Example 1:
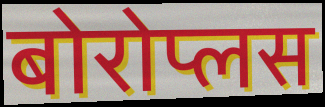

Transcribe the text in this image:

बोरोप्लस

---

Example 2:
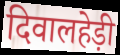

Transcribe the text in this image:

दिवालहेड़ी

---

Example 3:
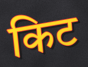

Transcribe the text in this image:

किट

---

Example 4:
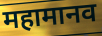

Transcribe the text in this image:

महामानव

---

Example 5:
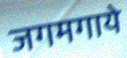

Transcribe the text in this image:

जगमगाये